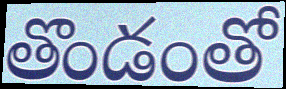
తొండంతో